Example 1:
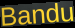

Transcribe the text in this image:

Bandu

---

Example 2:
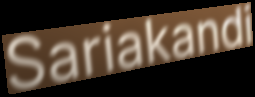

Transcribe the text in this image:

Sariakandi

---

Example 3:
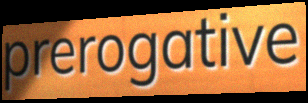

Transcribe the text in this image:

prerogative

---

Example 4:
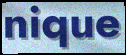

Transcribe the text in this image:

nique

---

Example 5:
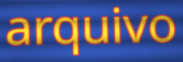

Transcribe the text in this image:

arquivo